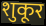
शुकूर